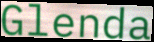
Glenda